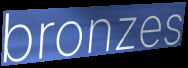
bronzes